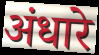
अंधारे